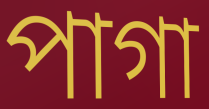
পাগা